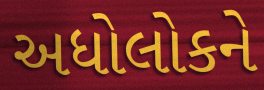
અધોલોકને